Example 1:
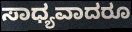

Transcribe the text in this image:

ಸಾಧ್ಯವಾದರೂ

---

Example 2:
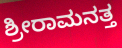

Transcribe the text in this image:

ಶ್ರೀರಾಮನತ್ತ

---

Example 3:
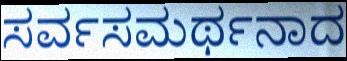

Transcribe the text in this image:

ಸರ್ವಸಮರ್ಥನಾದ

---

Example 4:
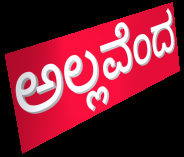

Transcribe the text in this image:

ಅಲ್ಲವೆಂದ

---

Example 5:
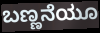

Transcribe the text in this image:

ಬಣ್ಣನೆಯೂ